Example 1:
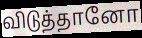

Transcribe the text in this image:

விடுத்தானோ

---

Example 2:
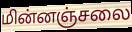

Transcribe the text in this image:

மின்னஞ்சலை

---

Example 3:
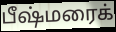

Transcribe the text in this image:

பீஷ்மரைக்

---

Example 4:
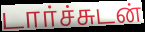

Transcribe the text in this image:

டார்ச்சுடன்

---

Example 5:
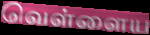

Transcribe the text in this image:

வெள்ளைய